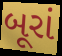
બૂરાં